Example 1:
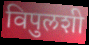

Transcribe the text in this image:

विपुलशी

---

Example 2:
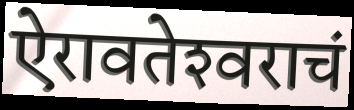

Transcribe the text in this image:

ऐरावतेश्वराचं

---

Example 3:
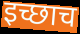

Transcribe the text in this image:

इच्छाच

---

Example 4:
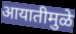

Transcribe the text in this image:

आयातीमुळे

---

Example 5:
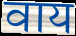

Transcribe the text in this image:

वाय